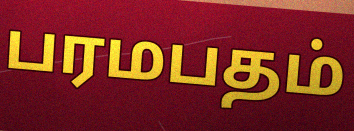
பரமபதம்